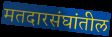
मतदारसंघांतील